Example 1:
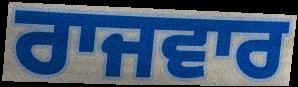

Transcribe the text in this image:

ਰਾਜਵਾਰ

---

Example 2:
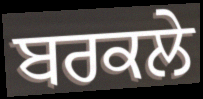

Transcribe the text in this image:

ਬਰਕਲੇ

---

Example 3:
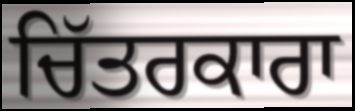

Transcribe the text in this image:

ਚਿੱਤਰਕਾਰਾ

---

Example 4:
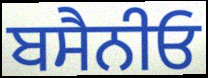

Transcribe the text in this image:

ਬਸੈਨੀਓ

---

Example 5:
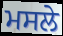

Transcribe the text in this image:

ਮਸਲੇ